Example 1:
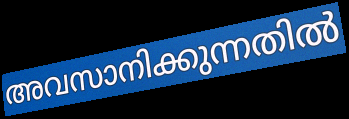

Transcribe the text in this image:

അവസാനിക്കുന്നതിൽ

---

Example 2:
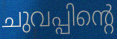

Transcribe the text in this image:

ചുവപ്പിന്റെ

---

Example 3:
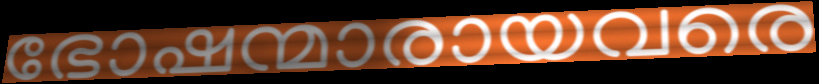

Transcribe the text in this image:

ഭോഷന്മാരായവരെ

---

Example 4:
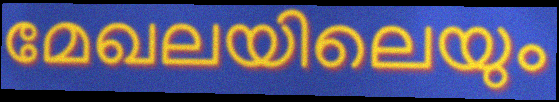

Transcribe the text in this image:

മേഖലയിലെയും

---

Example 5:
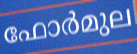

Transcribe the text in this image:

ഫോർമുല